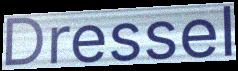
Dressel